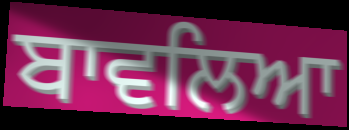
ਬਾਵਲਿਆ